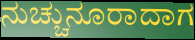
ನುಚ್ಚುನೂರಾದಾಗ